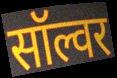
सॉल्वर